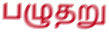
பழுதறு